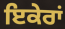
ਇਕੇਰਾਂ